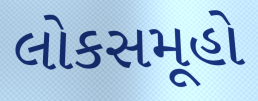
લોકસમૂહો